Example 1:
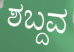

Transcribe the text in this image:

ಶಬ್ದವ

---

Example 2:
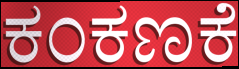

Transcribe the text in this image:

ಕಂಕಣಕೆ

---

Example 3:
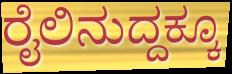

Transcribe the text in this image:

ರೈಲಿನುದ್ದಕ್ಕೂ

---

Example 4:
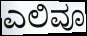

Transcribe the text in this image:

ಎಲಿವೂ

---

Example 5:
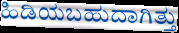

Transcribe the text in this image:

ಹಿಡಿಯಬಹುದಾಗಿತ್ತು